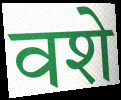
वशे